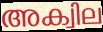
അക്വില